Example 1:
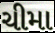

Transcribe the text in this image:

ચીમા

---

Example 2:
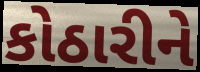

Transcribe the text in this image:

કોઠારીને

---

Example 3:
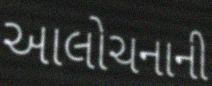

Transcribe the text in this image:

આલોચનાની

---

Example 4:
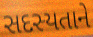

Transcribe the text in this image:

સદસ્યતાને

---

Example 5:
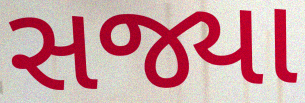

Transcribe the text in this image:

સજ્યા